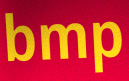
bmp